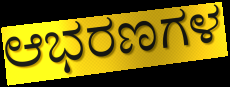
ಆಭರಣಗಳ